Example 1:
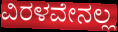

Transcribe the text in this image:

ವಿರಳವೇನಲ್ಲ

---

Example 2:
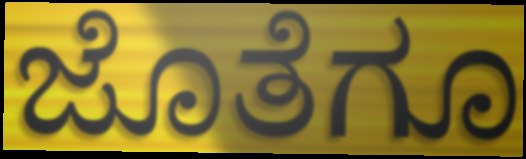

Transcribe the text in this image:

ಜೊತೆಗೂ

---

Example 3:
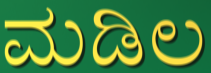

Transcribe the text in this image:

ಮಡಿಲ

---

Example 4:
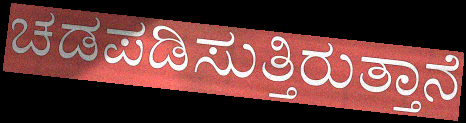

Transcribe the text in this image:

ಚಡಪಡಿಸುತ್ತಿರುತ್ತಾನೆ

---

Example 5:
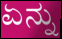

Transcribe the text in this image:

ಏನ್ನು